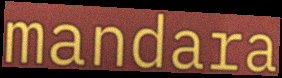
mandara